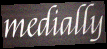
medially